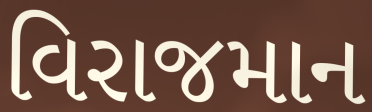
વિરાજમાન